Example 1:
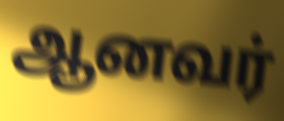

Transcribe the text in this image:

ஆனவர்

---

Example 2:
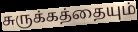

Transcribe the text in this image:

சுருக்கத்தையும்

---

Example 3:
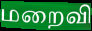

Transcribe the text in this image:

மறைவி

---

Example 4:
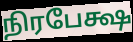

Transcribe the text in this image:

நிரபேக்ஷ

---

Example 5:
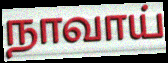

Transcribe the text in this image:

நாவாய்